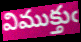
విముక్తుఁ